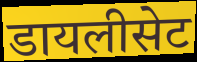
डायलीसेट